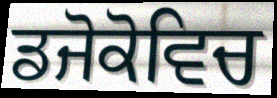
ਡਜੋਕੋਵਿਚ